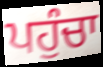
ਪਹੁੰਚਾ